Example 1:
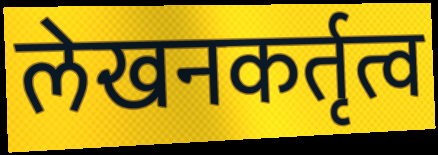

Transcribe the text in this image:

लेखनकर्तृत्व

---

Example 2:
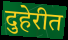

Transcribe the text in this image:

दुहेरीत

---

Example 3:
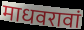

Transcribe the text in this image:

माधवरावां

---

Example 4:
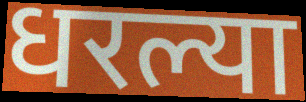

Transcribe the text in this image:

धरल्या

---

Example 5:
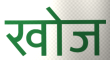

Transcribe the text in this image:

खोज